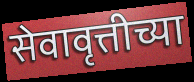
सेवावृत्तीच्या